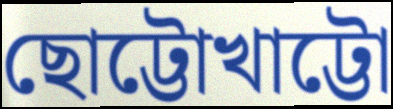
ছোট্টোখাট্টো